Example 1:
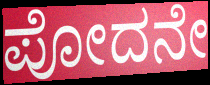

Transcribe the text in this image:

ಪೋದನೇ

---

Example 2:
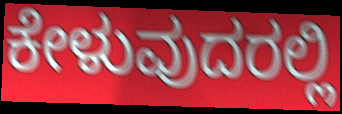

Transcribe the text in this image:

ಕೇಳುವುದರಲ್ಲಿ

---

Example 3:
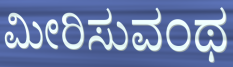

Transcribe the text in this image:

ಮೀರಿಸುವಂಥ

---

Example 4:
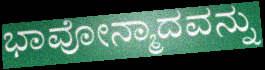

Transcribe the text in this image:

ಭಾವೋನ್ಮಾದವನ್ನು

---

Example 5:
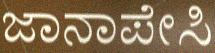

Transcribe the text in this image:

ಜಾನಾಪೇಸಿ